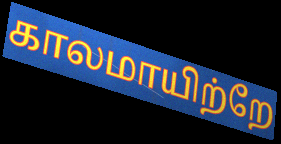
காலமாயிற்றே